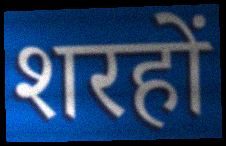
शरहों